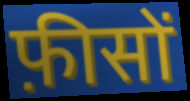
फ़ीसों